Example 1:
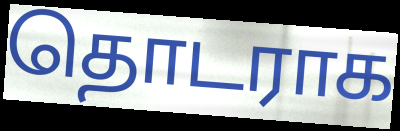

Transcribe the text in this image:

தொடராக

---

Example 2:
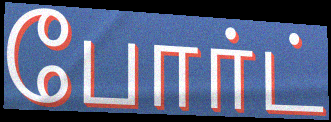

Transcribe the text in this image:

போர்ட்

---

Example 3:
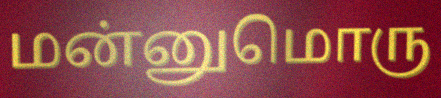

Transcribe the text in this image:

மன்னுமொரு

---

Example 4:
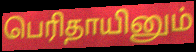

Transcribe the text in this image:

பெரிதாயினும்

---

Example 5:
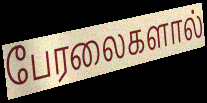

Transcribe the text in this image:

பேரலைகளால்